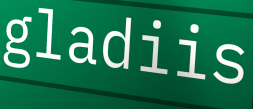
gladiis